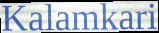
Kalamkari